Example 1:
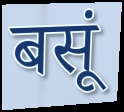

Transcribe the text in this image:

बसूं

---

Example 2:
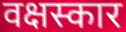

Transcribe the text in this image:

वक्षस्कार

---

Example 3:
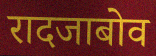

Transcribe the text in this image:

रादजाबोव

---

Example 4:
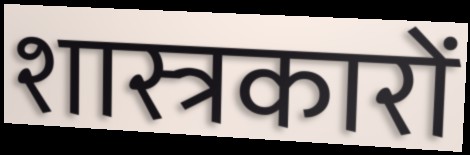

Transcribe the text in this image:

शास्त्रकारों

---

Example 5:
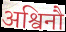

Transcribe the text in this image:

अश्विनौ